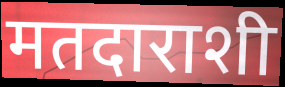
मतदाराशी